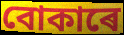
বোকাৰে